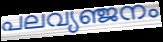
പലവ്യഞ്ജനം